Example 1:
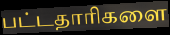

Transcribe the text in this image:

பட்டதாரிகளை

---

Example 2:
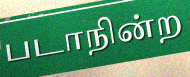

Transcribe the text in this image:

படாநின்ற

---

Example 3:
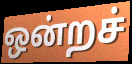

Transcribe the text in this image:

ஒன்றச்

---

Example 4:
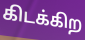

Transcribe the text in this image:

கிடக்கிற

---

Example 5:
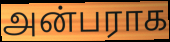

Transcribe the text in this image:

அன்பராக